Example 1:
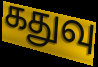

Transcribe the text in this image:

கதுவு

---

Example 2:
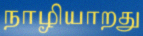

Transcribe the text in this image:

நாழியாறது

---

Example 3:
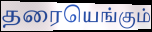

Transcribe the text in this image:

தரையெங்கும்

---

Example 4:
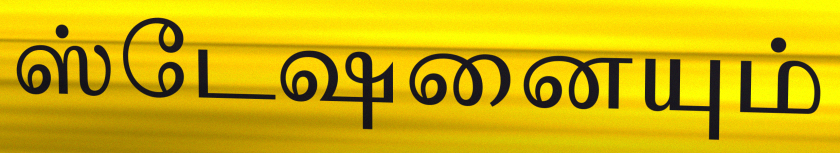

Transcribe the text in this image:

ஸ்டேஷனையும்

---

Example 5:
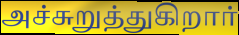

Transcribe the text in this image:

அச்சுறுத்துகிறார்